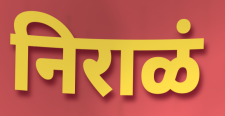
निराळं